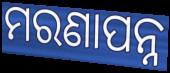
ମରଣାପନ୍ନ